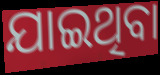
ଯାଇଥିବା